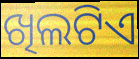
ଖିଲଟିଏ